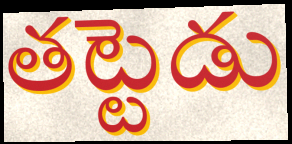
తట్టెడు